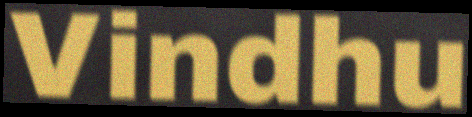
Vindhu